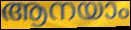
ആനയാം